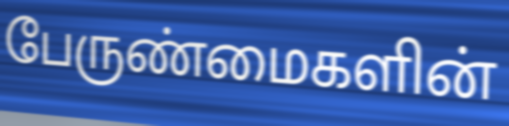
பேருண்மைகளின்